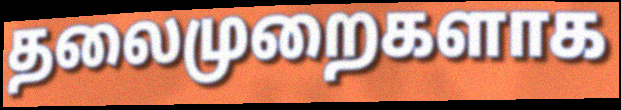
தலைமுறைகளாக